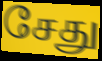
சேது